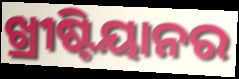
ଖ୍ରୀଷ୍ଟିୟାନର